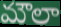
మౌలా